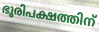
ഭൂരിപക്ഷത്തിന്